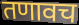
तणावच